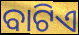
ବାଟିଏ